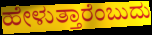
ಹೇಳುತ್ತಾರೆಂಬುದು